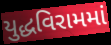
યુદ્ધવિરામમાં